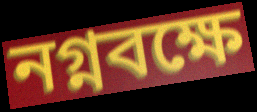
নগ্নবক্ষে